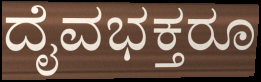
ದೈವಭಕ್ತರೂ